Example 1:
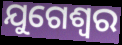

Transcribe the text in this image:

ଯୁଗେଶ୍ଵର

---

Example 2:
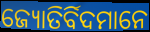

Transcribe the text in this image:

ଜ୍ୟୋତିର୍ବିଦମାନେ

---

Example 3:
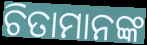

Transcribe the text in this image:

ଚିତାମାନଙ୍କ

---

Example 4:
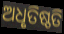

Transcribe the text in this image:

ଅଧୃତିଷ୍ଠତି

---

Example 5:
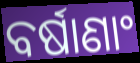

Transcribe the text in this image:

ବର୍ଷାଣାଂ